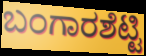
ಬಂಗಾರಶೆಟ್ಟಿ